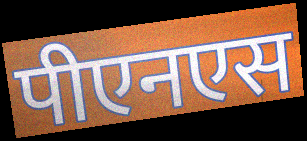
पीएनएस